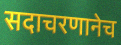
सदाचरणानेच